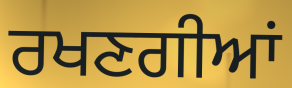
ਰਖਣਗੀਆਂ